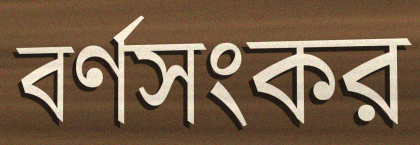
বর্ণসংকর